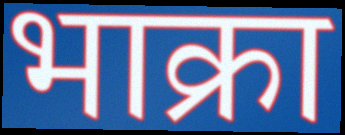
भाक्रा